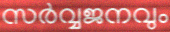
സർവ്വജനവും